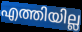
എത്തിയില്ല